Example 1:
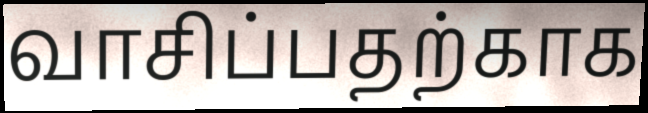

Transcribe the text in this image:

வாசிப்பதற்காக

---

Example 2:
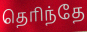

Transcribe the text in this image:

தெரிந்தே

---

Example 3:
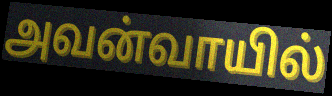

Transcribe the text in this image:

அவன்வாயில்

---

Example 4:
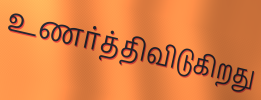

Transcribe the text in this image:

உணர்த்திவிடுகிறது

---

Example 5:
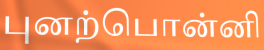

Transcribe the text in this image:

புனற்பொன்னி